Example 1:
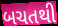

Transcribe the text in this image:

બચતથી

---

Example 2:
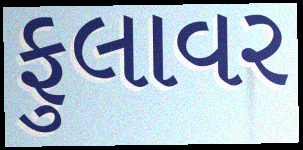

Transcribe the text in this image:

ફુલાવર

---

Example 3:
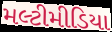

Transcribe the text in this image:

મલ્ટીમીડિયા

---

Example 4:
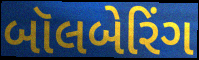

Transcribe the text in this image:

બૉલબેરિંગ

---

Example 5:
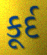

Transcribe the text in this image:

કૂર્દ